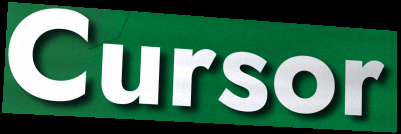
Cursor